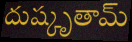
దుష్కృతామ్